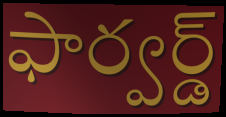
ఫార్వర్డ్